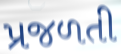
પ્રજળતી